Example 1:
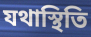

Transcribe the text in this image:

যথাস্থিতি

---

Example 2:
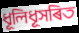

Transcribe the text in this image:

ধূলিধূসৰিত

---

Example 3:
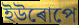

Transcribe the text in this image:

ইউৰোপে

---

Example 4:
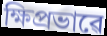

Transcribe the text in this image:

ক্ষিপ্ৰভাৱে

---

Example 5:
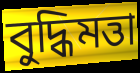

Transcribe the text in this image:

বুদ্ধিমত্তা